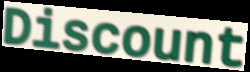
Discount